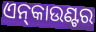
ଏନ୍‌କାଉଣ୍ଟର